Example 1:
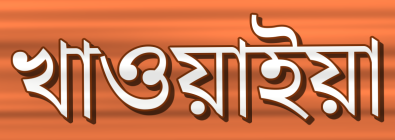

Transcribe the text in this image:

খাওয়াইয়া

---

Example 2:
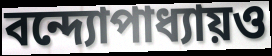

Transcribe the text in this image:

বন্দ্যোপাধ্যায়ও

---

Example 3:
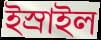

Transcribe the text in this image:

ইস্রাইল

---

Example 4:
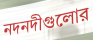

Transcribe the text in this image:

নদনদীগুলোর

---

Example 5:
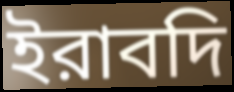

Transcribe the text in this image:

ইরাবদি